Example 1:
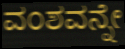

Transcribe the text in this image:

ವಂಶವನ್ನೇ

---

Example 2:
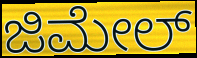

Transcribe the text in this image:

ಜಿಮೇಲ್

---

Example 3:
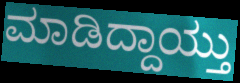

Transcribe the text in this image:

ಮಾಡಿದ್ದಾಯ್ತು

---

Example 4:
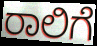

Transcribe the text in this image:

ರಾಲಿಗೆ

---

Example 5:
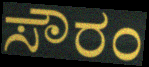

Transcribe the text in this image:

ಸೌರಂ